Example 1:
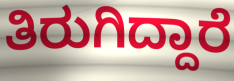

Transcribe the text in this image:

ತಿರುಗಿದ್ದಾರೆ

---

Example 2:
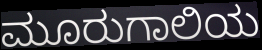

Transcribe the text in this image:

ಮೂರುಗಾಲಿಯ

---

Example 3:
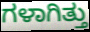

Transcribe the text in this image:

ಗಳಾಗಿತ್ತು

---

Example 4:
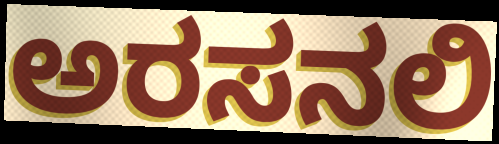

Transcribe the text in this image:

ಅರಸನಲಿ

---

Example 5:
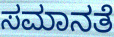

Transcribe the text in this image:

ಸಮಾನತೆ